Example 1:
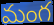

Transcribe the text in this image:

మంగ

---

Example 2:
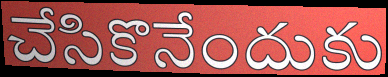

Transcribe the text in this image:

చేసికొనేందుకు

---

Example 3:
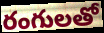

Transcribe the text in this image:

రంగులతో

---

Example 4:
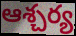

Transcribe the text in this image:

ఆశ్చర్య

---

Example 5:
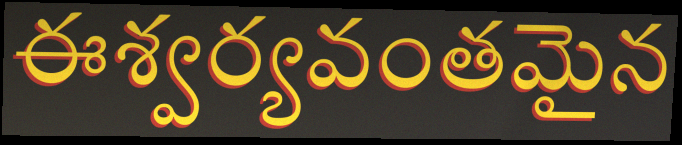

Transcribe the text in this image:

ఈశ్వర్యవంతమైన